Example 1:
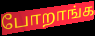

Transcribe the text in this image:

போறாங்க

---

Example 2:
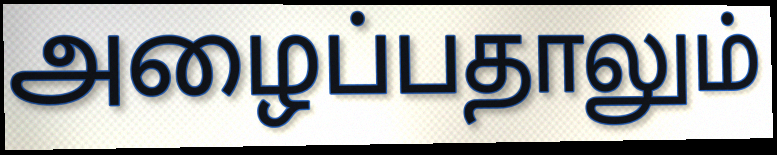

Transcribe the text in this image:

அழைப்பதாலும்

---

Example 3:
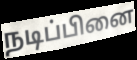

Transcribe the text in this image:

நடிப்பினை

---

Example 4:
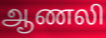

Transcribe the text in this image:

ஆணலி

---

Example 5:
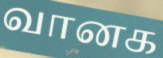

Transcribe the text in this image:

வானக